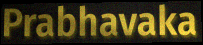
Prabhavaka